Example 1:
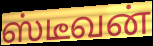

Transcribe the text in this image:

ஸ்டீவன்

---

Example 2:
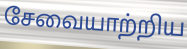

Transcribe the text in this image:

சேவையாற்றிய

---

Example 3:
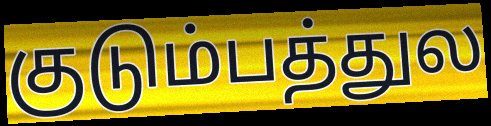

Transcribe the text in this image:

குடும்பத்துல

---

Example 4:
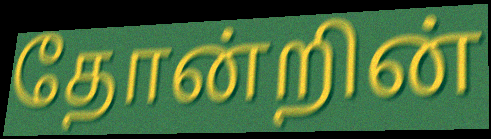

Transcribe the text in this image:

தோன்றின்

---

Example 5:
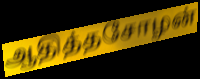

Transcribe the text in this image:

ஆதித்தசோழன்